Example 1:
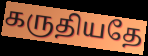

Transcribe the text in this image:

கருதியதே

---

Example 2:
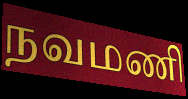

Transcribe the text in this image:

நவமணி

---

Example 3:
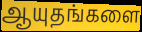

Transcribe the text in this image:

ஆயுதங்களை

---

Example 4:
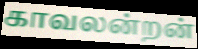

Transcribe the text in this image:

காவலன்றன்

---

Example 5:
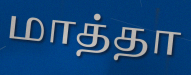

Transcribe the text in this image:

மாத்தா